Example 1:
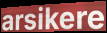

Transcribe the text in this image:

arsikere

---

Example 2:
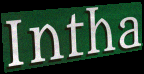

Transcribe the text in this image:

Intha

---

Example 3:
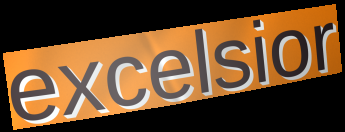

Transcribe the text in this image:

excelsior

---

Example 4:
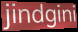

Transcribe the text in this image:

jindgini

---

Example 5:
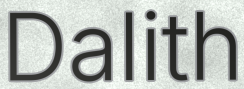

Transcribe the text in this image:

Dalith